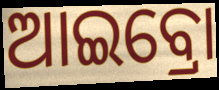
ଆଇବ୍ରୋ